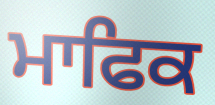
ਮਾਫਿਕ